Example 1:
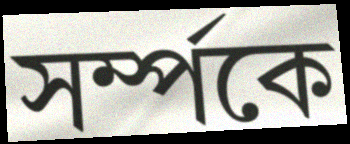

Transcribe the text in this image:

সৰ্ম্পকে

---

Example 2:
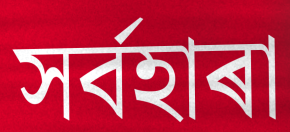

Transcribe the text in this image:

সৰ্বহাৰা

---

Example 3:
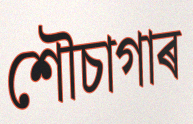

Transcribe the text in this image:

শৌচাগাৰ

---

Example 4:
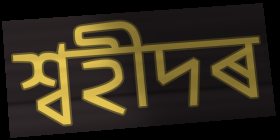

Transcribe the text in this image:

শ্বহীদৰ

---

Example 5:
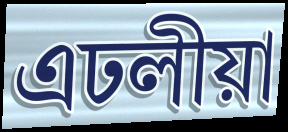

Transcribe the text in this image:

এঢলীয়া